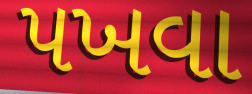
પખવા